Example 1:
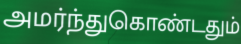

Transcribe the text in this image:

அமர்ந்துகொண்டதும்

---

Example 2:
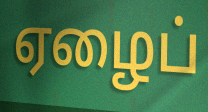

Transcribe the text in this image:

ஏழைப்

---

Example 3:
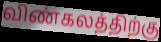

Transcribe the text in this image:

விண்கலத்திற்கு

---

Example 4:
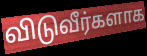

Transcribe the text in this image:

விடுவீர்களாக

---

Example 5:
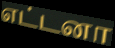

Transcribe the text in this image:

எட்டனா